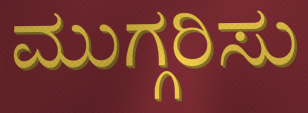
ಮುಗ್ಗರಿಸು